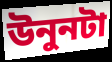
উনুনটা